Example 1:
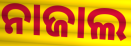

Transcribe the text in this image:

ନାଜାଲ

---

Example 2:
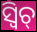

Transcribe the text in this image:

ସ୍ଵିଚ୍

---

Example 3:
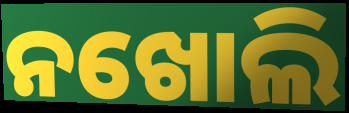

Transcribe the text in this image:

ନଖୋଲି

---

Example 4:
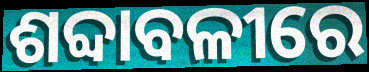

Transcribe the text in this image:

ଶବ୍ଦାବଳୀରେ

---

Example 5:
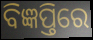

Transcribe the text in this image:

ବିଜ୍ଞପ୍ତିରେ